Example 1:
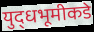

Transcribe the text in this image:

युद्धभूमीकडे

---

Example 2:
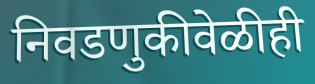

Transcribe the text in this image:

निवडणुकीवेळीही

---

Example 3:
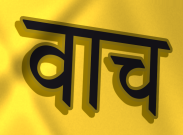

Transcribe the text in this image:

वाच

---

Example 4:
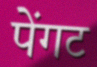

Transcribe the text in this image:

पेंगट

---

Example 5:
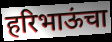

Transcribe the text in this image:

हरिभाऊंचा